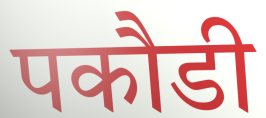
पकौडी